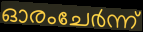
ഓരംചേർന്ന്